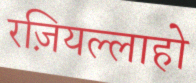
रज़ियल्लाहो